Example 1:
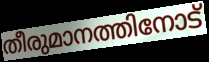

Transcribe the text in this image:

തീരുമാനത്തിനോട്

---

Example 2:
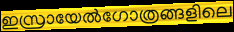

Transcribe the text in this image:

ഇസ്രായേൽഗോത്രങ്ങളിലെ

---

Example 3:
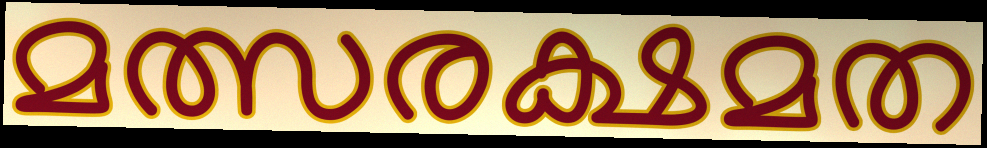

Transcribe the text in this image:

മത്സരക്ഷമത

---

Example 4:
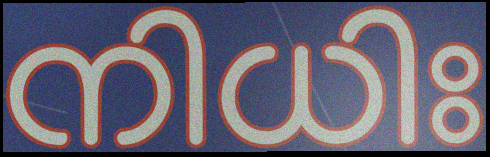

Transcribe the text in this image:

നിധിഃ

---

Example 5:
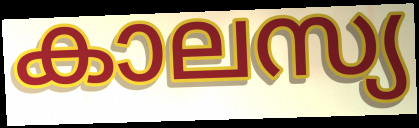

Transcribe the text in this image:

കാലസ്യ